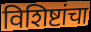
विशिष्टांचा